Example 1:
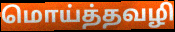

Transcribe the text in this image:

மொய்த்தவழி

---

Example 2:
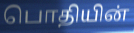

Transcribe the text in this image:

பொதியின்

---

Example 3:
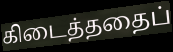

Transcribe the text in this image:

கிடைத்ததைப்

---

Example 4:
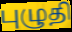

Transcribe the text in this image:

புழுதி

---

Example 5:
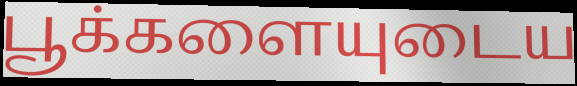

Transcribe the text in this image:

பூக்களையுடைய